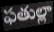
ఫతుల్లా